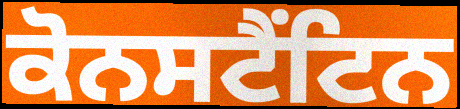
ਕੋਨਸਟੈਂਟਿਨ